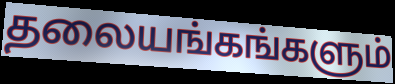
தலையங்கங்களும்